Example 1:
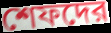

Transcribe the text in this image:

শেফদের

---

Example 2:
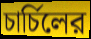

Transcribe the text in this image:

চার্চিলের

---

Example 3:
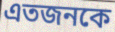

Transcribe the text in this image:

এতজনকে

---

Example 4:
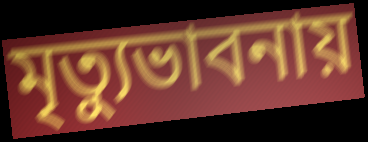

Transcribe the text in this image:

মৃত্যুভাবনায়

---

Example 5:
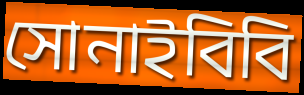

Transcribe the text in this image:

সোনাইবিবি